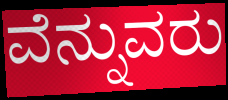
ವೆನ್ನುವರು